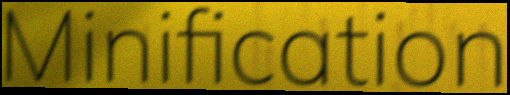
Minification